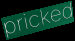
pricked